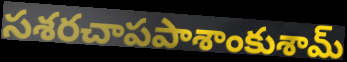
సశరచాపపాశాంకుశామ్